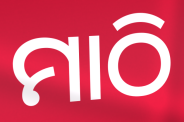
ମାଠି